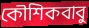
কৌশিকবাবু